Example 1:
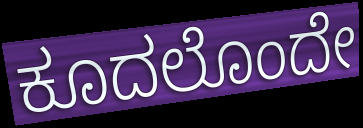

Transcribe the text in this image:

ಕೂದಲೊಂದೇ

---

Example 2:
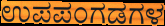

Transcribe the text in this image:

ಉಪಪಂಗಡಗಳ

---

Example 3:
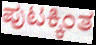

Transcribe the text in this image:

ಪುಟಕ್ಕಿಂತ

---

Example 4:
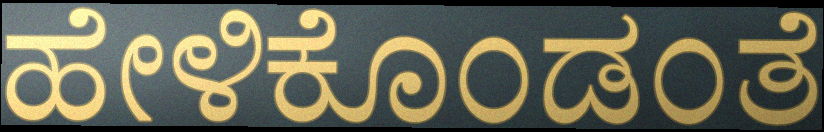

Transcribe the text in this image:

ಹೇಳಿಕೊಂಡಂತೆ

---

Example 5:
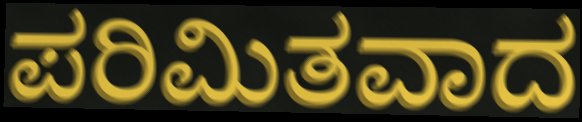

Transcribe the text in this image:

ಪರಿಮಿತವಾದ